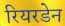
रियरडेन